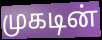
முகடின்